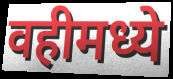
वहीमध्ये